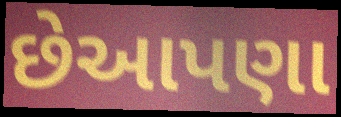
છેઆપણા